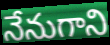
నేనుగాని